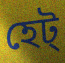
হেট্